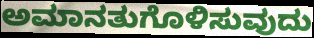
ಅಮಾನತುಗೊಳಿಸುವುದು